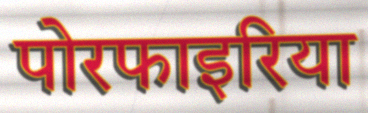
पोरफाइरिया